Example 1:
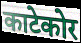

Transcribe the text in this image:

काटेकोर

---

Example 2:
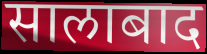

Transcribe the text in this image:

सालाबाद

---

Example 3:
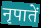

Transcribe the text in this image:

नृपातें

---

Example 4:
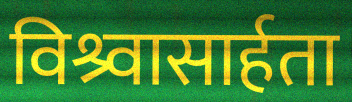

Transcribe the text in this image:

विश्र्वासार्हता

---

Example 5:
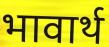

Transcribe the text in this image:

भावार्थ